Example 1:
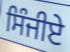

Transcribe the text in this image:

ਸਿੰਜੀਏ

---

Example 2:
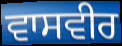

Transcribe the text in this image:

ਵਾਸਵੀਰ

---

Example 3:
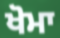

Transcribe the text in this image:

ਖੋਮਾ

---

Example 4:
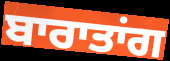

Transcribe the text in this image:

ਬਾਰਾਤਾਂਗ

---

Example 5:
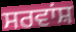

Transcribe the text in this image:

ਸਰਵਾਂਸ਼